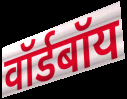
वॉर्डबॉय